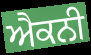
ਐਕਨੀ